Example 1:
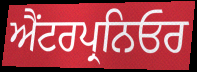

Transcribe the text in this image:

ਐਂਟਰਪ੍ਰਨਿਓਰ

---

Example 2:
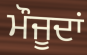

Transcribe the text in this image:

ਮੌਜੂਦਾਂ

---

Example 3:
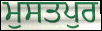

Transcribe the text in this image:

ਮੁਸਤਪੁਰ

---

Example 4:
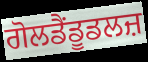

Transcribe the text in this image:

ਗੋਲਡੈਂਡੂਡਲਜ਼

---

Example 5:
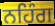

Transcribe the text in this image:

ਨਹਿੰਗ